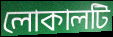
লোকালটি